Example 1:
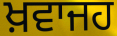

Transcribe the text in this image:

ਖ਼ਵਾਜਹ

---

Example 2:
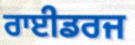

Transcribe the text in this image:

ਰਾਈਡਰਜ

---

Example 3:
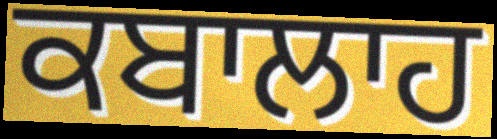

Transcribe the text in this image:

ਕਬਾਲਾਹ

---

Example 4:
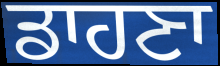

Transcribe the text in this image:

ਡਾਹਣਾ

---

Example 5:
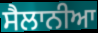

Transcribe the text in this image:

ਸੈਲਾਨੀਆ